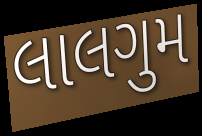
લાલગુમ